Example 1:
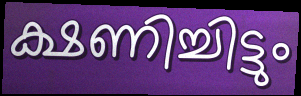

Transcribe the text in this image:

ക്ഷണിച്ചിട്ടും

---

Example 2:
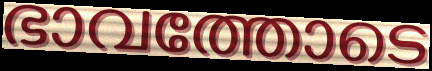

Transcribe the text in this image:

ഭാവത്തോടെ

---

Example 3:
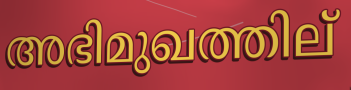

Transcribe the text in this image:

അഭിമുഖത്തില്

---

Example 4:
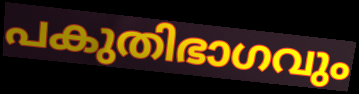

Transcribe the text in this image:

പകുതിഭാഗവും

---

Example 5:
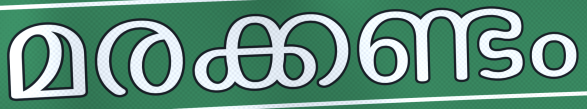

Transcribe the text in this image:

മരക്കണ്ടം